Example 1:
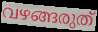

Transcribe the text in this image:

വഴങ്ങരുത്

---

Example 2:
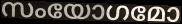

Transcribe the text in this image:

സംയോഗമോ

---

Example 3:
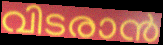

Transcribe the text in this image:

വിടരാൻ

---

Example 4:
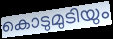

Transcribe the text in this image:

കൊടുമുടിയും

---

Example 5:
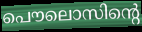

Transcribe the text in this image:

പൌലൊസിന്റെ